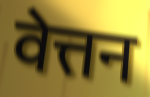
वेत्तन